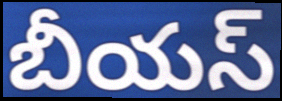
బీయస్